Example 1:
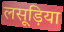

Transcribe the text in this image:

लसूड़िया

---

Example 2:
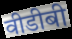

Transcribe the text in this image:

वीडीबी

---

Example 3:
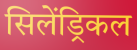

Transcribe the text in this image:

सिलेंड्रिकल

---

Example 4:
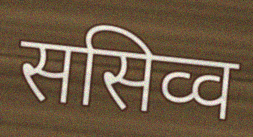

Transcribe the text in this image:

ससिव्व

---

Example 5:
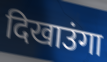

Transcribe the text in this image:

दिखाउंगा